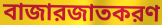
বাজারজাতকরণ